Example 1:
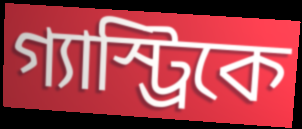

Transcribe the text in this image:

গ্যাস্ট্রিকে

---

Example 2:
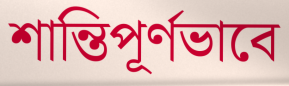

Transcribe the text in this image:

শান্তিপূর্ণভাবে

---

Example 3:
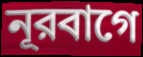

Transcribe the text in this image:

নূরবাগে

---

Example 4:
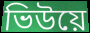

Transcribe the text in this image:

ভিউয়ে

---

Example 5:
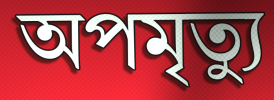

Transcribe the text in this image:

অপমৃত্যু